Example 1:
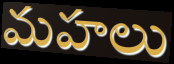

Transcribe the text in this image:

మహలు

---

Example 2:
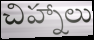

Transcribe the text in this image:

చిహ్నాలు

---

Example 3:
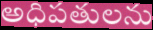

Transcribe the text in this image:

అధిపతులను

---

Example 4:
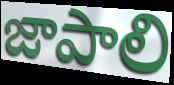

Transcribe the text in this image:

జాపాలి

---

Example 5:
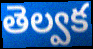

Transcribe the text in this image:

తెల్వక